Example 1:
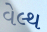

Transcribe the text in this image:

વેલ્થ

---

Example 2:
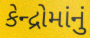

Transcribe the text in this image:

કેન્દ્રોમાંનું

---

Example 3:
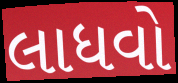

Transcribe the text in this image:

લાધવો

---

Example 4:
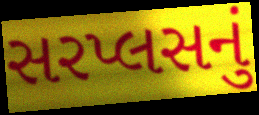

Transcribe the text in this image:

સરપ્લસનું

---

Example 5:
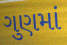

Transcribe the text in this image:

ગુણમાં